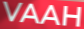
VAAH